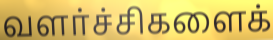
வளர்ச்சிகளைக்